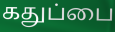
கதுப்பை